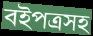
বইপত্রসহ